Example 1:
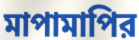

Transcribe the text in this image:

মাপামাপির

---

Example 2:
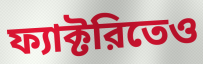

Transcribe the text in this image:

ফ্যাক্টরিতেও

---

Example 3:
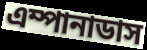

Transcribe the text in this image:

এম্পানাডাস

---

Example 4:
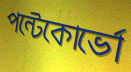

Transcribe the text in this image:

পন্টেকোর্ভো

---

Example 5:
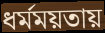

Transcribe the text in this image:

ধর্মময়তায়